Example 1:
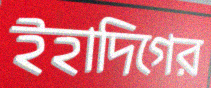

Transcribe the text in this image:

ইহাদিগের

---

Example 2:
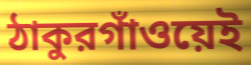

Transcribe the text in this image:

ঠাকুরগাঁওয়েই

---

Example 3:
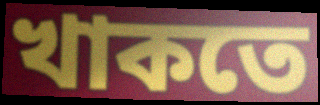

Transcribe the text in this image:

খাকতে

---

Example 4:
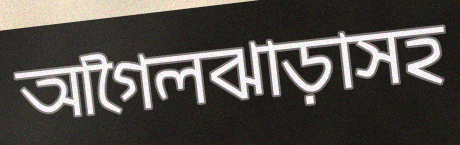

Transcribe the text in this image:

আগৈলঝাড়াসহ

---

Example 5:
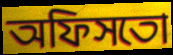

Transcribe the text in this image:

অফিসতো